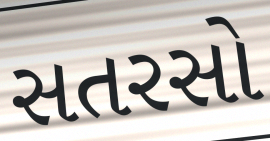
સતરસો